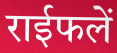
राईफलें